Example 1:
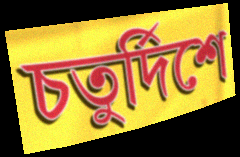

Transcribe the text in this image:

চতুৰ্দিশে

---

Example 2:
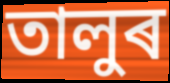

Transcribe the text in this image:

তালুৰ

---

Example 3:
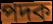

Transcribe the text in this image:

পদক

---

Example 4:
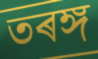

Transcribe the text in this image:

তৰঙ্গ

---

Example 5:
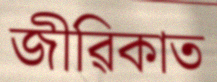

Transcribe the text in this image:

জীৱিকাত